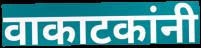
वाकाटकांनी